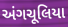
અંગચૂલિયા